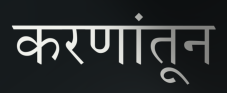
करणांतून